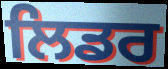
ਲਿਡਰ